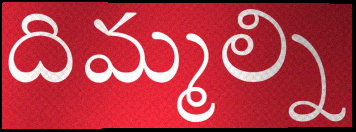
దిమ్మల్ని